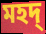
মহদ্